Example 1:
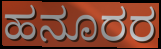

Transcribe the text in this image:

ಹನೂರರ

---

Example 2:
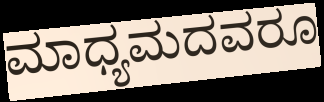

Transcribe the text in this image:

ಮಾಧ್ಯಮದವರೂ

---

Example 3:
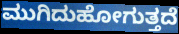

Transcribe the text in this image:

ಮುಗಿದುಹೋಗುತ್ತದೆ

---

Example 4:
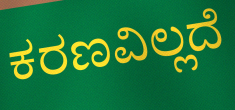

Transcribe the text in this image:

ಕರಣವಿಲ್ಲದೆ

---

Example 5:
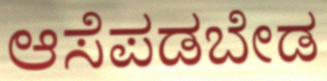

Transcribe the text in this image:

ಆಸೆಪಡಬೇಡ